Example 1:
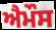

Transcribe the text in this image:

ਐਮੌਸ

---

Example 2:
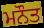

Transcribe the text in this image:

ਮਨੌਤ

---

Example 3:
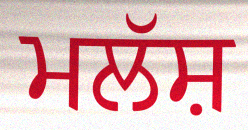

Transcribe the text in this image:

ਮਲੱਸ਼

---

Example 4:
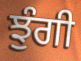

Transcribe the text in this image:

ਝੁੰਗੀ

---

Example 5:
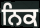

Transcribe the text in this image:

ਨਿਕ